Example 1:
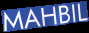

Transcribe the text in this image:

MAHBIL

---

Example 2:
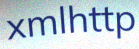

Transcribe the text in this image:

xmlhttp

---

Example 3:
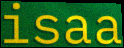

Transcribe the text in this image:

isaa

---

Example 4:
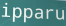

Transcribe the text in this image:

ipparu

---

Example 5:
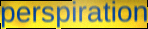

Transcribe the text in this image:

perspiration